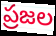
ప్రజల